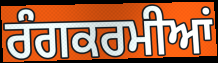
ਰੰਗਕਰਮੀਆਂ